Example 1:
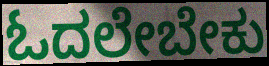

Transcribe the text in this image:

ಓದಲೇಬೇಕು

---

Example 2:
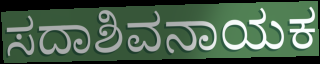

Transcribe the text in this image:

ಸದಾಶಿವನಾಯಕ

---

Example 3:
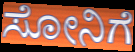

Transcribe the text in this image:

ಸೋನಿಗೆ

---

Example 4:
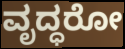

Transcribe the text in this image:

ವೃದ್ಧರೋ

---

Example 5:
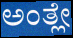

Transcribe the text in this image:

ಅಂತ್ಲೇ